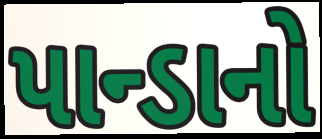
પાન્ડાનો